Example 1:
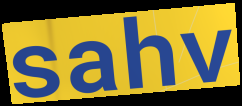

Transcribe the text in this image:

sahv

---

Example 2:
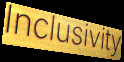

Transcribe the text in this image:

Inclusivity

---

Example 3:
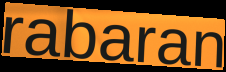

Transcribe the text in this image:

rabaran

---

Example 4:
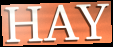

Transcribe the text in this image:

HAY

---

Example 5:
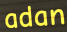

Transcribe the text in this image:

adan